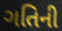
ગતિની